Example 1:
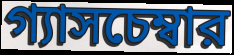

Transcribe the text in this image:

গ্যাসচেম্বার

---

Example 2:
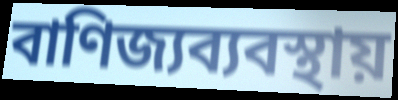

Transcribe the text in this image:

বাণিজ্যব্যবস্থায়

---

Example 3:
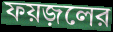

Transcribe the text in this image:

ফয়জ়লের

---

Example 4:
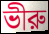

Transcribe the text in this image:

ভীরু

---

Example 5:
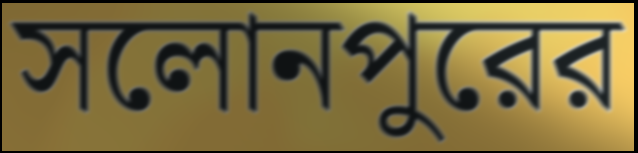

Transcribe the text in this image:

সলোনপুরের